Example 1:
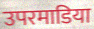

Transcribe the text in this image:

उपरमाडिया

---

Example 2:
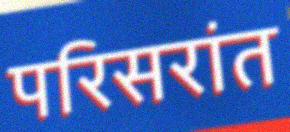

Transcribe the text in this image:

परिसरांत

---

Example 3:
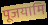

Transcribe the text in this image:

पूजयामि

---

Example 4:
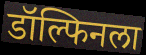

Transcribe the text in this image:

डॉल्फिनला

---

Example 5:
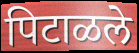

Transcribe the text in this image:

पिटाळले